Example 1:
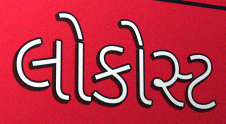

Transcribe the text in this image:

લોકોસ્ટ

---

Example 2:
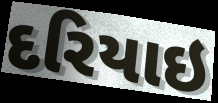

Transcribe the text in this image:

દરિયાઇ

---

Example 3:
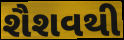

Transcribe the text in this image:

શૈશવથી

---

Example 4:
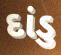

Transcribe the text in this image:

દાંડુ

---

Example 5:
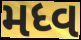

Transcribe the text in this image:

મધ્વ